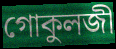
গোকুলজী